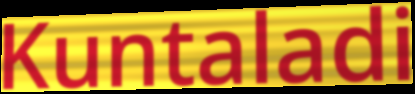
Kuntaladi